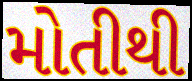
મોતીથી